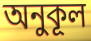
অনুকূল